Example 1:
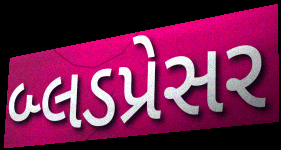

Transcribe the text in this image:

બ્લડપ્રેસર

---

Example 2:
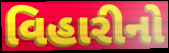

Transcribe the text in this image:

વિહારીનો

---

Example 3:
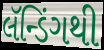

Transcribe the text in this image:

લૅન્ડિંગથી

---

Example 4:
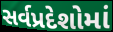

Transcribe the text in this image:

સર્વપ્રદેશોમાં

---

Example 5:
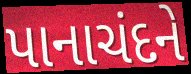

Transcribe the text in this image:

પાનાચંદને